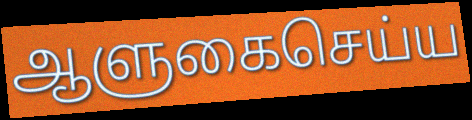
ஆளுகைசெய்ய